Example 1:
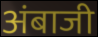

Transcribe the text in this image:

अंबाजी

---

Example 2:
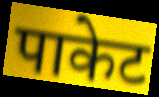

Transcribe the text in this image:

पाकेट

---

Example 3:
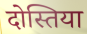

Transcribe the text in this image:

दोस्तिया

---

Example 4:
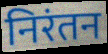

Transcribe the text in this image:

निरंतन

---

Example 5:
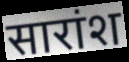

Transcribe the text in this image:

सारांश